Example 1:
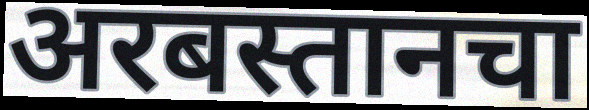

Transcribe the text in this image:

अरबस्तानचा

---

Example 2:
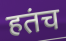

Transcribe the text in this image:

हतंच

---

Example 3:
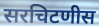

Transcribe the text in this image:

सरचिटणीस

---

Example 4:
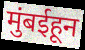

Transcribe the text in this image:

मुंबईहून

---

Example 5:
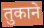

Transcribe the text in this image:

तुकाने